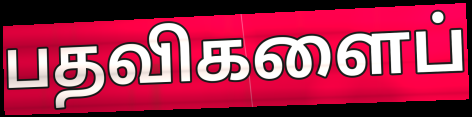
பதவிகளைப்